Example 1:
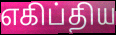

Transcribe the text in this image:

எகிப்திய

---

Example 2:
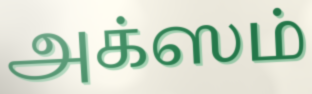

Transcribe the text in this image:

அக்ஸம்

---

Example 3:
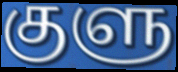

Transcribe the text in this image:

குளு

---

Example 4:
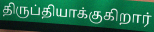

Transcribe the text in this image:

திருப்தியாக்குகிறார்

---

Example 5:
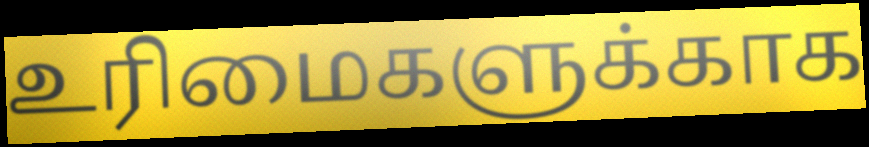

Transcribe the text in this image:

உரிமைகளுக்காக